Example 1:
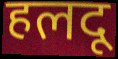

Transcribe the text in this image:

हलदू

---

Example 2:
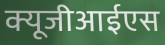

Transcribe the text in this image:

क्यूजीआईएस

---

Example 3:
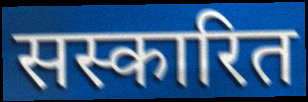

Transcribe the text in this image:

सस्कारित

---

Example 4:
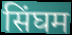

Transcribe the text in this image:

सिंघम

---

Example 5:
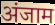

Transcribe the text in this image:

अंजाम